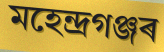
মহেন্দ্ৰগঞ্জৰ